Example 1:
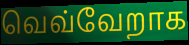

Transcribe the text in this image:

வெவ்வேறாக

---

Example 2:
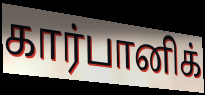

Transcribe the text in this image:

கார்பானிக்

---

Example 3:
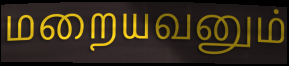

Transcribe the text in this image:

மறையவனும்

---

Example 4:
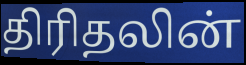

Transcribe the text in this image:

திரிதலின்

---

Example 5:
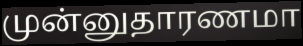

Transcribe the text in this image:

முன்னுதாரணமா